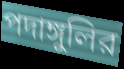
পদাঙ্গুলির